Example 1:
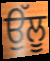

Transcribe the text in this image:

ਉੱਲੂ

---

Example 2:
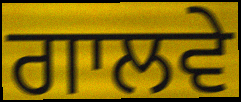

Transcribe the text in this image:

ਗਾਲਵੇ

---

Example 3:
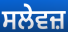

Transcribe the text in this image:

ਸਲੇਵਜ਼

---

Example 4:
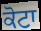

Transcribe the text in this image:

ਕੋਟਾ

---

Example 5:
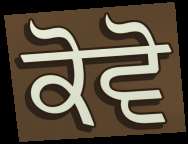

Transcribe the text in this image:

ਕੋਵੋ